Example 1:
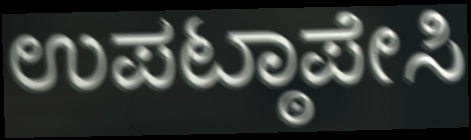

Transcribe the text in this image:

ಉಪಟ್ಠಾಪೇಸಿ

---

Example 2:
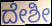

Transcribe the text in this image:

ದೇಶೀ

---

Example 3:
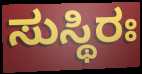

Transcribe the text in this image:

ಸುಸ್ಥಿರಃ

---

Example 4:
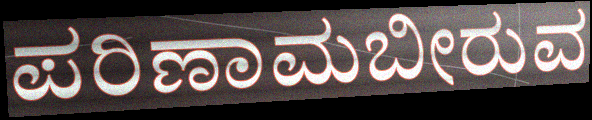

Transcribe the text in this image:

ಪರಿಣಾಮಬೀರುವ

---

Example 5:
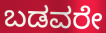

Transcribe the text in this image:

ಬಡವರೇ